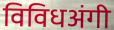
विविधअंगी